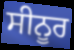
ਸੀਨੂਰ